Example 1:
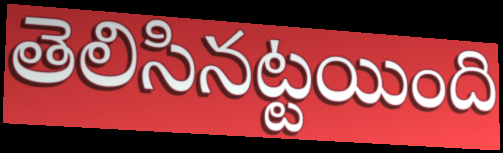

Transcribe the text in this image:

తెలిసినట్టయింది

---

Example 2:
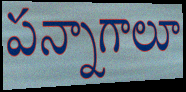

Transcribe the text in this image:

పన్నాగాలూ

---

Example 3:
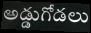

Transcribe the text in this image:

అడ్డుగోడలు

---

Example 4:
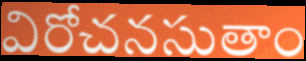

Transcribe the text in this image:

విరోచనసుతాం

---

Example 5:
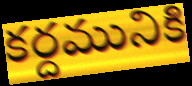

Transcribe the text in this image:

కర్దమునికి